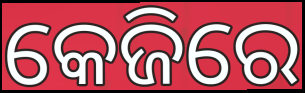
କେଜିରେ